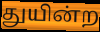
துயின்ற